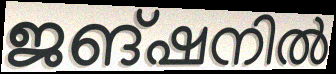
ജങ്ഷനിൽ